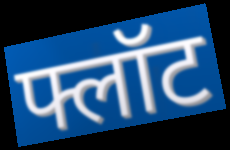
फ्लॉट